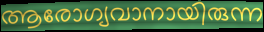
ആരോഗ്യവാനായിരുന്ന